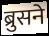
ब्रुसने